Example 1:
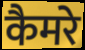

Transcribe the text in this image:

कैमरे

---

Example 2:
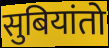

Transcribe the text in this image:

सुबियांतो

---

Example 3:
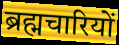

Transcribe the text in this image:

ब्रह्मचारियों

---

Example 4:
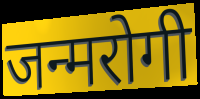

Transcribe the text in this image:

जन्मरोगी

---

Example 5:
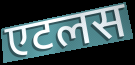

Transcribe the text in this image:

एटलस